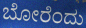
ಬೋರೆಂದು